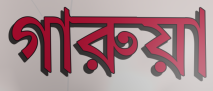
গারুয়া